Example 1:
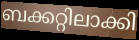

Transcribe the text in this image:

ബക്കറ്റിലാക്കി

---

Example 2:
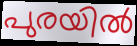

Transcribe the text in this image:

പുരയിൽ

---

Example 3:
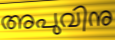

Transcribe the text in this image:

അപുവിനു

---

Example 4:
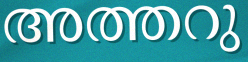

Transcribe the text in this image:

അത്തറു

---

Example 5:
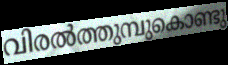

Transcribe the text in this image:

വിരൽത്തുമ്പുകൊണ്ടു